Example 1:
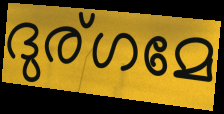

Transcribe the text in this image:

ദുര്ഗമേ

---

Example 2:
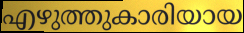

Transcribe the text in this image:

എഴുത്തുകാരിയായ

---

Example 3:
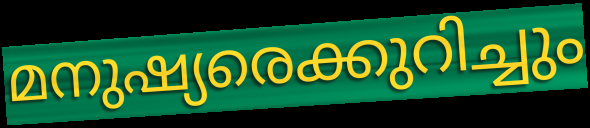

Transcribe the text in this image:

മനുഷ്യരെക്കുറിച്ചും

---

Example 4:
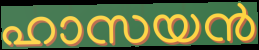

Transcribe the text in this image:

ഹാസയൻ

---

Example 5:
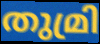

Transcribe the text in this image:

തുമ്രി